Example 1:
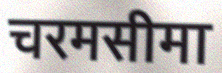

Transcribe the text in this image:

चरमसीमा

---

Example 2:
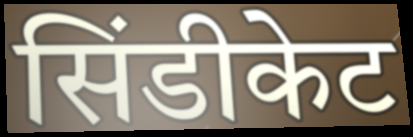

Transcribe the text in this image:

सिंडीकेट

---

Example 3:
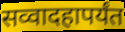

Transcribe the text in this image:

सव्वादहापर्यंत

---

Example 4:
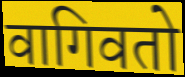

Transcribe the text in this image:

वागिवतो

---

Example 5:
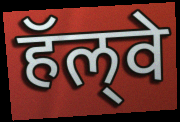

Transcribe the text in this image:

हॅल्वे